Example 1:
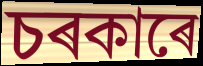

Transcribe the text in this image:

চৰকাৰে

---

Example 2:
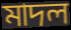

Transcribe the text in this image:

মাদল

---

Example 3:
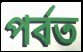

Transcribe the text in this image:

পৰ্বত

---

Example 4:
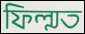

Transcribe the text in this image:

ফিল্মত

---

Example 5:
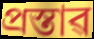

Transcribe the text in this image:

প্ৰস্তাৱ